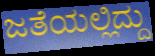
ಜತೆಯಲ್ಲಿದ್ದು